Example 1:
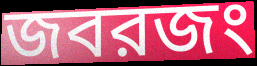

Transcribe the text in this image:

জবরজং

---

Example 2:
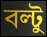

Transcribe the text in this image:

বল্টু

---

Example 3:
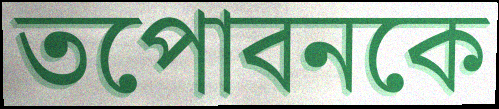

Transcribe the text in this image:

তপোবনকে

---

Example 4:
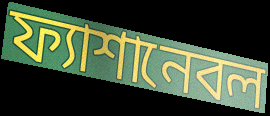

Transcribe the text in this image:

ফ্যাশানেবল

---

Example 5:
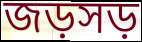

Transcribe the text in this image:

জড়সড়